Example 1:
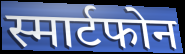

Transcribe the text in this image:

स्‍मार्टफोन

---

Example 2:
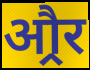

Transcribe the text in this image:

औ्रर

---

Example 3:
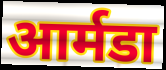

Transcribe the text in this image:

आर्मडा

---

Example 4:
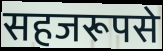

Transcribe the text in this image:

सहजरूपसे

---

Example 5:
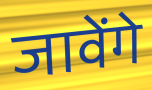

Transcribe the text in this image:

जावेंगे